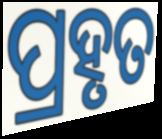
ପ୍ରହୃତ